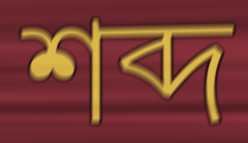
শব্দ